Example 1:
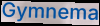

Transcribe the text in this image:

Gymnema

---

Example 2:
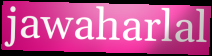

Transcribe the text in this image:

jawaharlal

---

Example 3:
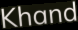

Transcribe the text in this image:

Khand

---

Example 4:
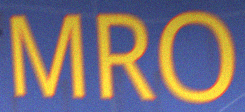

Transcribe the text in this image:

MRO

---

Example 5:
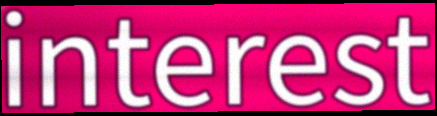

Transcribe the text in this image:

interest